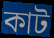
কাট